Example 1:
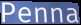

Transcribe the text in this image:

Penna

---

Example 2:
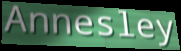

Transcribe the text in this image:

Annesley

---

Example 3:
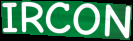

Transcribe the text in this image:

IRCON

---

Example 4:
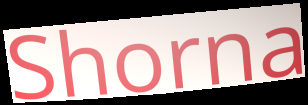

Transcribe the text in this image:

Shorna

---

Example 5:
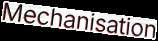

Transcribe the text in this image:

Mechanisation